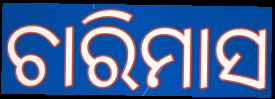
ଚାରିମାସ